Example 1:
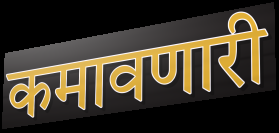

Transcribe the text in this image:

कमावणारी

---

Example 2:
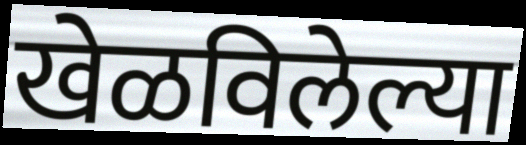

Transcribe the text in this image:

खेळविलेल्या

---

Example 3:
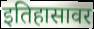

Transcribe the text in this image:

इतिहासावर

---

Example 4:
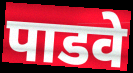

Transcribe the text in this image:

पाडवे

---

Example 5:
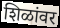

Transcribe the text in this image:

शिळांवर